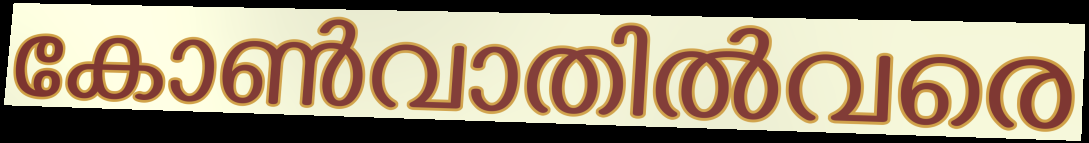
കോൺവാതിൽവരെ